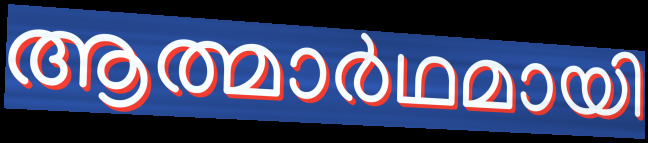
ആത്മാർഥമായി